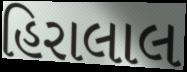
હિરાલાલ